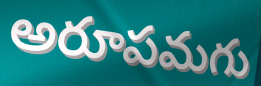
అరూపమగు